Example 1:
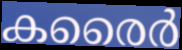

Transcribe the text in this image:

കരൈർ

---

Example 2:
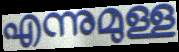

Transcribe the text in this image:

എന്നുമുള്ള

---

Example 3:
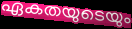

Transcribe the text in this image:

ഏകതയുടെയും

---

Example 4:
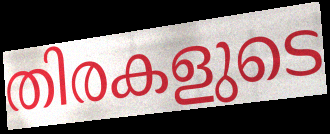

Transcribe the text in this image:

തിരകളുടെ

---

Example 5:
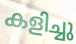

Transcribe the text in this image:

കളിച്ചു